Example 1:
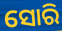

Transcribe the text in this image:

ସୋରି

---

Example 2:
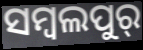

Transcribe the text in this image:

ସମ୍ବଲପୁର୍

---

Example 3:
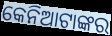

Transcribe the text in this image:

କେନିଆଟାଙ୍କର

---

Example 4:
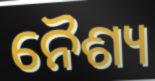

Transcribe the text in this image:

ନୈଶ୍ୟ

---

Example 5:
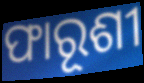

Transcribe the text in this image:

ଫାରୂଶୀ